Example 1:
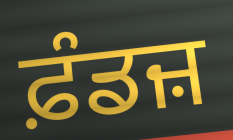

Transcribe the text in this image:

ਫ਼ੰਡਜ਼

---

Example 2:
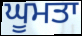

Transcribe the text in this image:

ਘੂਮਤਾ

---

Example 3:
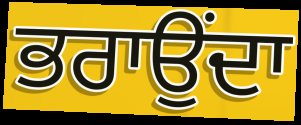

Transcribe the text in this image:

ਭਰਾਉਂਦਾ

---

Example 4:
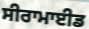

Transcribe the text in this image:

ਸੀਰਾਮਾਈਡ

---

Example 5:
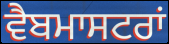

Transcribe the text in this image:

ਵੈਬਮਾਸਟਰਾਂ